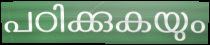
പഠിക്കുകയും